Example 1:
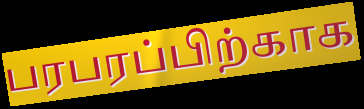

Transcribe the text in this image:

பரபரப்பிற்காக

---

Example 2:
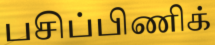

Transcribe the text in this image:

பசிப்பிணிக்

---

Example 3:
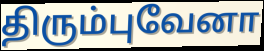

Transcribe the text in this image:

திரும்புவேனா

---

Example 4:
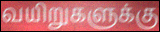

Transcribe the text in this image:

வயிறுகளுக்கு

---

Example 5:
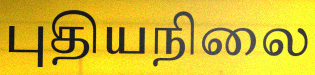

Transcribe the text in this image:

புதியநிலை